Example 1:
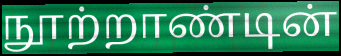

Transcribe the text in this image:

நூற்றாண்டின்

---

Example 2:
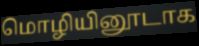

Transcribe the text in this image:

மொழியினூடாக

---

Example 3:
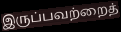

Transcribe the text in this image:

இருப்பவற்றைத்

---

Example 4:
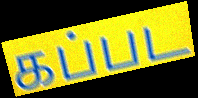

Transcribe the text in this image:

கப்பட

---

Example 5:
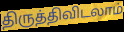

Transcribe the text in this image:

திருத்திவிடலாம்